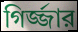
গির্জ্জার